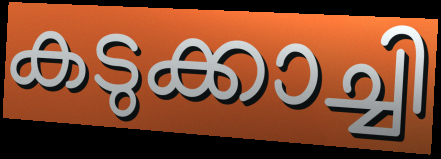
കടുക്കാച്ചി